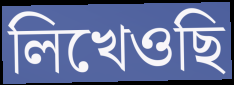
লিখেওছি